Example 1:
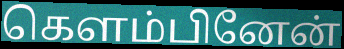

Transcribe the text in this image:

கெளம்பினேன்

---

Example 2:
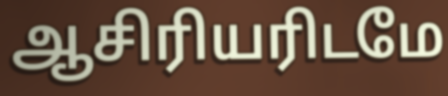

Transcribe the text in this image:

ஆசிரியரிடமே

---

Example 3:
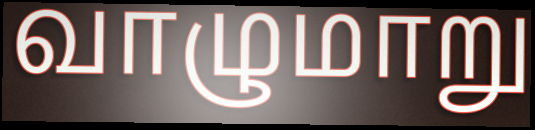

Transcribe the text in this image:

வாழுமாறு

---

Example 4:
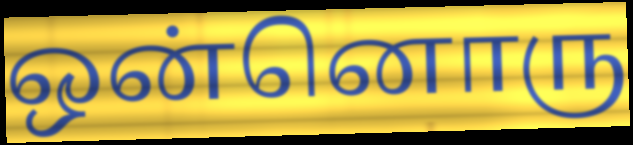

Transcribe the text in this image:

ஒன்னொரு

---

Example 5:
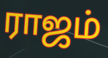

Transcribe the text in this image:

ராஜம்